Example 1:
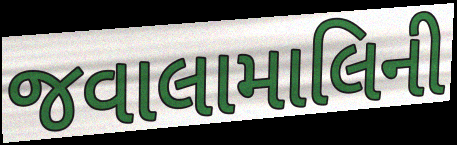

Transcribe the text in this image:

જવાલામાલિની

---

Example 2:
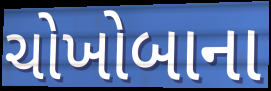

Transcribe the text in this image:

ચોખોબાના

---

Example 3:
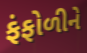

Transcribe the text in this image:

ફંફોળીને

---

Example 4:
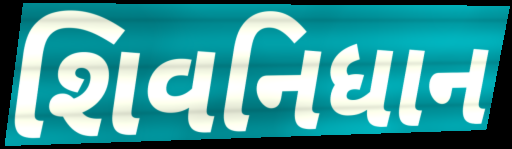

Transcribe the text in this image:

શિવનિધાન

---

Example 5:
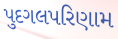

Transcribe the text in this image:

પુદગલપરિણામ